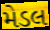
મેડલ